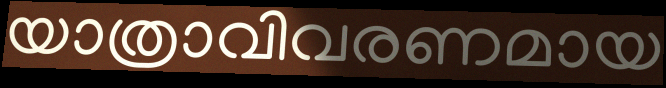
യാത്രാവിവരണമായ